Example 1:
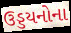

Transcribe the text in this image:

ઉડ્ડયનોના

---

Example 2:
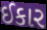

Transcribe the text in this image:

ઈકાર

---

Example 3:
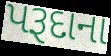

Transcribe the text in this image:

પરૂદાના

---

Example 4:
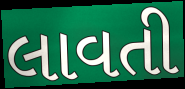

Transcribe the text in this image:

લાવતી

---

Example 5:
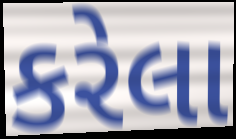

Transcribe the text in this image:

કરેલા